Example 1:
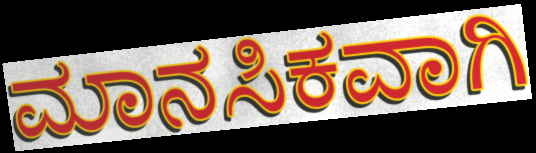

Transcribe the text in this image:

ಮಾನಸಿಕವಾಗಿ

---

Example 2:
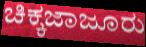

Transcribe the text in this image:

ಚಿಕ್ಕಜಾಜೂರು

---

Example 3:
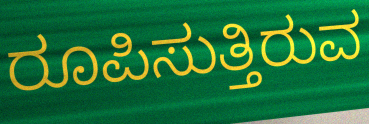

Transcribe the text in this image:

ರೂಪಿಸುತ್ತಿರುವ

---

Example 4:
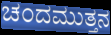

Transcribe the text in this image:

ಚಂದಮುತ್ತನ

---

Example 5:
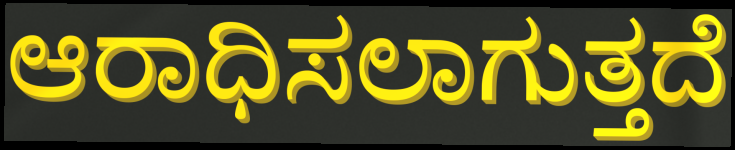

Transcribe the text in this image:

ಆರಾಧಿಸಲಾಗುತ್ತದೆ